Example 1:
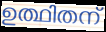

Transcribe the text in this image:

ഉത്ഥിതന്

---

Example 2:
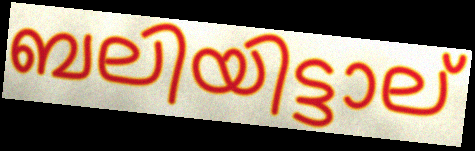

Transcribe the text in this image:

ബലിയിട്ടാല്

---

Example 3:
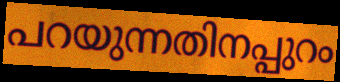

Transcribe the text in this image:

പറയുന്നതിനപ്പുറം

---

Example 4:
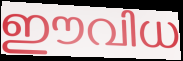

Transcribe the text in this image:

ഈവിധ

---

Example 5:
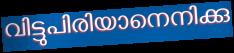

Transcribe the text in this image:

വിട്ടുപിരിയാനെനിക്കു